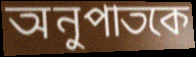
অনুপাতকে